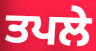
ਤਪਲੇ